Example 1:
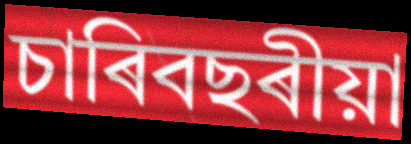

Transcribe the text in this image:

চাৰিবছৰীয়া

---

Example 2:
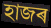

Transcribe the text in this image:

হাজৰ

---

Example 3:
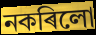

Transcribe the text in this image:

নকৰিলো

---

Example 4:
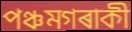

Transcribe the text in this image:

পঞ্চমগৰাকী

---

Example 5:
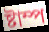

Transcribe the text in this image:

ষ্টাম্প